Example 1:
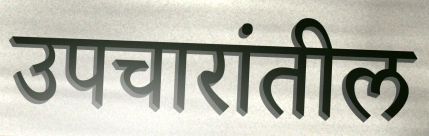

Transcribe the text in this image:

उपचारांतील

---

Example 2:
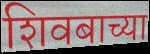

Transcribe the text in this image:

शिवबाच्या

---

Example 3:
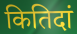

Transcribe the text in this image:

कितिदां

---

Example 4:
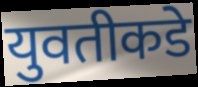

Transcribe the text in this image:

युवतीकडे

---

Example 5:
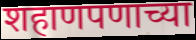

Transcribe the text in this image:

शहाणपणाच्या